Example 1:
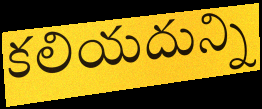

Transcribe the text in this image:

కలియదున్ని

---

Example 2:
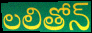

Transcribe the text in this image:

లలితోన్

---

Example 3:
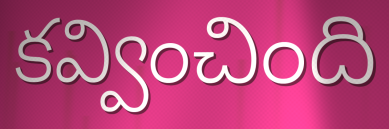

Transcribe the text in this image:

కవ్వించింది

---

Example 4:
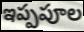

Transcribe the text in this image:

ఇప్పపూల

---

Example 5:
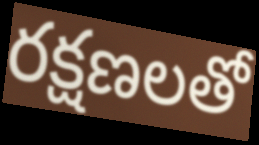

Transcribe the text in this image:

రక్షణలతో